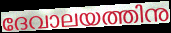
ദേവാലയത്തിനു